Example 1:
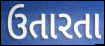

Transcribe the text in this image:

ઉતારતા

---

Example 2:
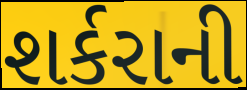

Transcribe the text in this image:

શર્કરાની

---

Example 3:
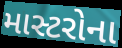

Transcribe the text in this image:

માસ્ટરોના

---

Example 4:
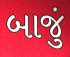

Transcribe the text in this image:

બાજું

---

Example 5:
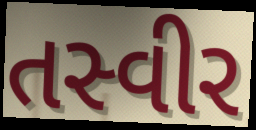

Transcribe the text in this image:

તસ્વીર